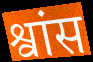
श्वांस